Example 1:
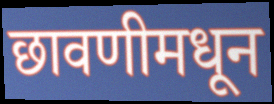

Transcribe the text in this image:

छावणीमधून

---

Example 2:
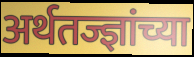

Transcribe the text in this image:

अर्थतज्ज्ञांच्या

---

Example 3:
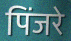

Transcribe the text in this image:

पिंजरे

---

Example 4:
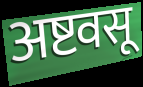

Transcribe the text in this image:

अष्टवसू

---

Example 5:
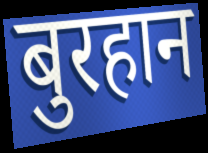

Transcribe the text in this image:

बुरहान